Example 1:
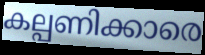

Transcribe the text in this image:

കല്പണിക്കാരെ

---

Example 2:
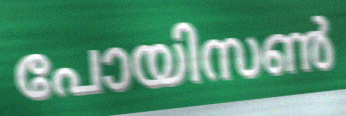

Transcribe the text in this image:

പോയിസൺ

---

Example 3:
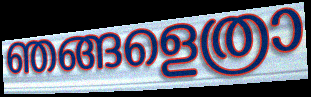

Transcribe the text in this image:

ഞങ്ങളെത്രാ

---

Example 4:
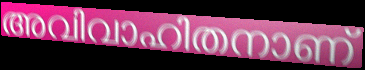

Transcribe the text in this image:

അവിവാഹിതനാണ്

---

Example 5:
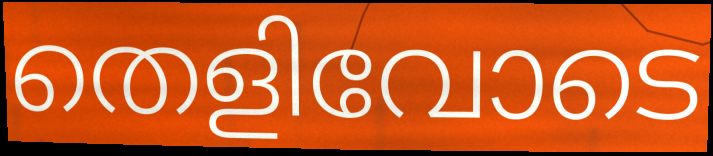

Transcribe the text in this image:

തെളിവോടെ